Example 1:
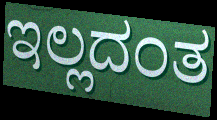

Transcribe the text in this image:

ಇಲ್ಲದಂತ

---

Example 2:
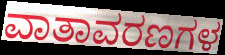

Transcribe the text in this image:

ವಾತಾವರಣಗಳ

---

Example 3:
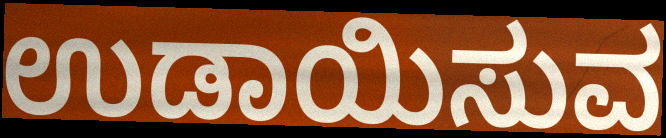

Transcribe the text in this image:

ಉಡಾಯಿಸುವ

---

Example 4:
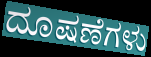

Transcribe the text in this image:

ದೂಷಣೆಗಳು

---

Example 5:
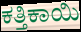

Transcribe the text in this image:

ಕತ್ತಿಕಾಯಿ